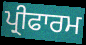
ਪ੍ਰੀਫਾਰਮ